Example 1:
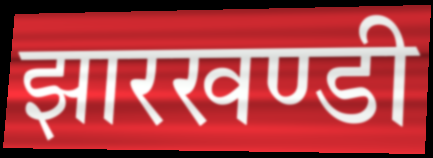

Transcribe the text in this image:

झारखण्डी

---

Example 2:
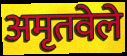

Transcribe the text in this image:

अमृतवेले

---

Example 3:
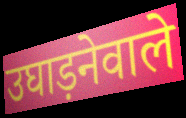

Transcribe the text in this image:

उघाड़नेवाले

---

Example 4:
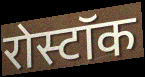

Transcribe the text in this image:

रोस्टॉक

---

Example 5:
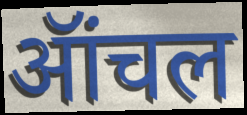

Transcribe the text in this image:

ऑंचल